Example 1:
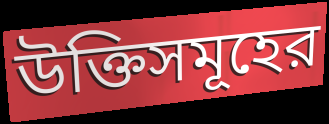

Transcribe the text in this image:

উক্তিসমূহের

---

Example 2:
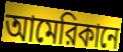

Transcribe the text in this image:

আমেরিকানে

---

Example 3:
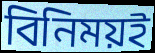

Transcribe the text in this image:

বিনিময়ই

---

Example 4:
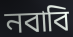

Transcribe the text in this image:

নবাবি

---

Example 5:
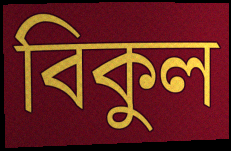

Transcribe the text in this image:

বিকুল